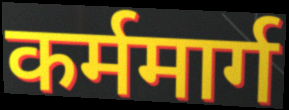
कर्ममार्ग